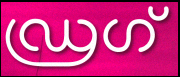
ഡ്രഗ്